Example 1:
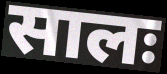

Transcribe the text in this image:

सालः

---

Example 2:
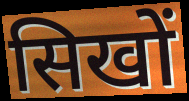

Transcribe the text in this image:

सिखों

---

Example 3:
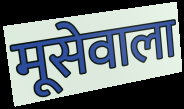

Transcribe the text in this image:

मूसेवाला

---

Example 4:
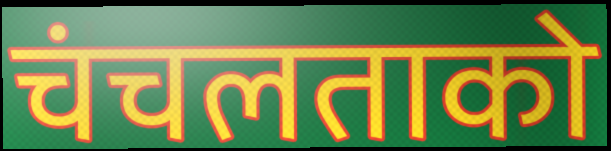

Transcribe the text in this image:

चंचलताको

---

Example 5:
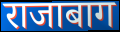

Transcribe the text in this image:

राजाबाग